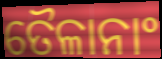
ତୈଳାନାଂ